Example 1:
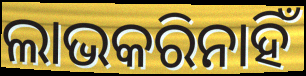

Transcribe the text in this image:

ଲାଭକରିନାହିଁ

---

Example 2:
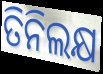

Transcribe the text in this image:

ତିନିଲକ୍ଷ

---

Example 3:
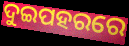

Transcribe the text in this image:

ଦୁଇପହରରେ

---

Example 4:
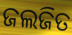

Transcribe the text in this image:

ଜଲଜିତ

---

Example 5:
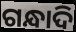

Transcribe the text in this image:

ଗନ୍ଧାଦି